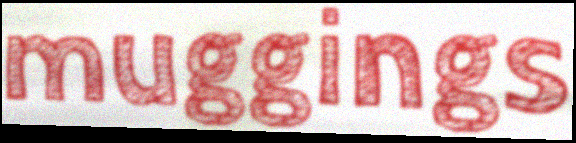
muggings